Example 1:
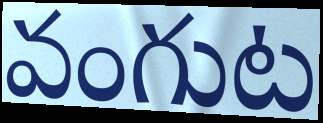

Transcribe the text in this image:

వంగుట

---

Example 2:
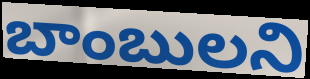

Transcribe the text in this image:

బాంబులని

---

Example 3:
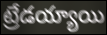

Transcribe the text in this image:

ట్రేడయ్యాయి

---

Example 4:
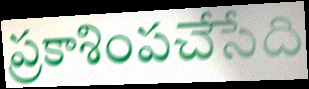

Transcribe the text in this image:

ప్రకాశింపచేసేది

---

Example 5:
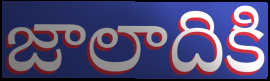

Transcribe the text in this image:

జాలాదికి